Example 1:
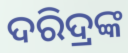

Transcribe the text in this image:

ଦରିଦ୍ରଙ୍କ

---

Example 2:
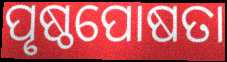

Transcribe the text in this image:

ପୃଷ୍ଠପୋଷତା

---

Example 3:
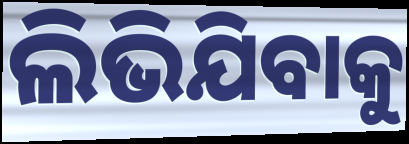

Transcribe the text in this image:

ଲିଭିଯିବାକୁ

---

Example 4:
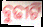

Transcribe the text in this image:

ବୁଢୀଟି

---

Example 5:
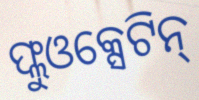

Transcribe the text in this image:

ଫ୍ଲୁଓକ୍ସେଟିନ୍